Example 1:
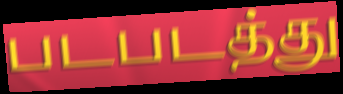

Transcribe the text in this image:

படபடத்து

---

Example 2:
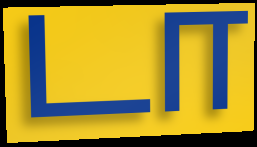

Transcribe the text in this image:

டா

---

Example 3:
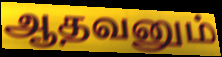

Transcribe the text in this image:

ஆதவனும்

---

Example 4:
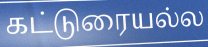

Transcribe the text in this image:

கட்டுரையல்ல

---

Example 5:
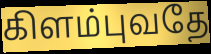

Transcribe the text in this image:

கிளம்புவதே